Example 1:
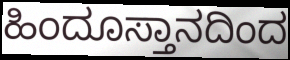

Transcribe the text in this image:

ಹಿಂದೂಸ್ತಾನದಿಂದ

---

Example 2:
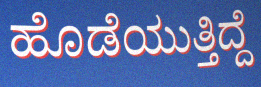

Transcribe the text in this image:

ಹೊಡೆಯುತ್ತಿದ್ದೆ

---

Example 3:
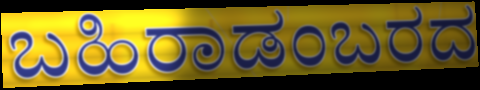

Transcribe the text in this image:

ಬಹಿರಾಡಂಬರದ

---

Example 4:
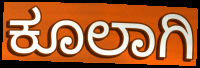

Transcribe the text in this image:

ಕೂಲಾಗಿ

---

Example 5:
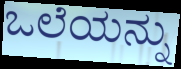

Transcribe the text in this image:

ಒಲೆಯನ್ನು